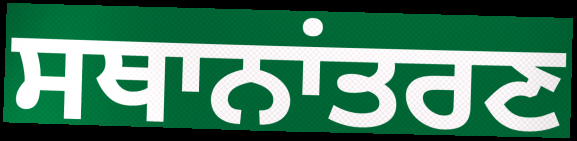
ਸਥਾਨਾਂਤਰਣ